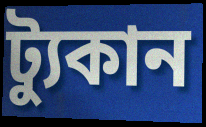
ট্যুকান